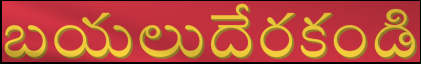
బయలుదేరకండి